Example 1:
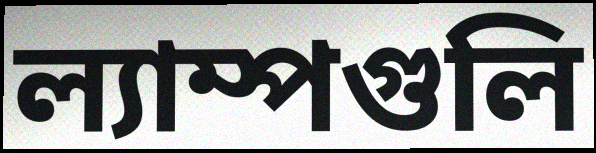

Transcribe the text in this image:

ল্যাম্পগুলি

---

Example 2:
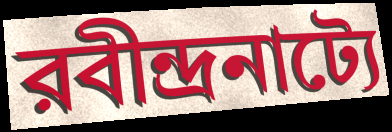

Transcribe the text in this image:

রবীন্দ্রনাট্যে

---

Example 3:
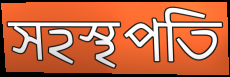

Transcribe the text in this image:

সহস্থপতি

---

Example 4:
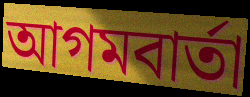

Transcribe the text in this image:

আগমবার্তা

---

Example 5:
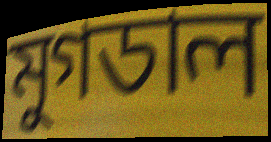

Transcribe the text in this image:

মুগডাল